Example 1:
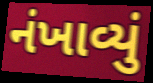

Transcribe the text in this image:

નંખાવ્યું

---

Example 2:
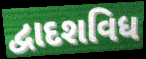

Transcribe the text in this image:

દ્વાદશવિધ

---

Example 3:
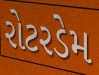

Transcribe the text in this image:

રોટરડેમ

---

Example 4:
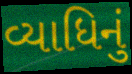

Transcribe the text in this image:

વ્યાધિનું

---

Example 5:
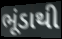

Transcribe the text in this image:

ભૂંડાથી